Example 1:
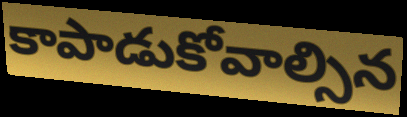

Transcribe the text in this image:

కాపాడుకోవాల్సిన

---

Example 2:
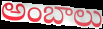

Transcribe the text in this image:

అంబాలు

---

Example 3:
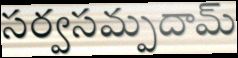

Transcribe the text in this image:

సర్వసమ్పదామ్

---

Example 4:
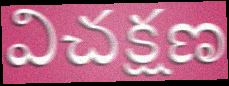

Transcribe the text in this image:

విచక్షణ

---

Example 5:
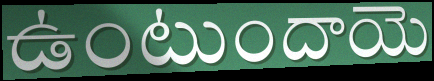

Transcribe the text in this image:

ఉంటుందాయె